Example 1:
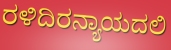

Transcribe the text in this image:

ರಳಿದಿರನ್ಯಾಯದಲಿ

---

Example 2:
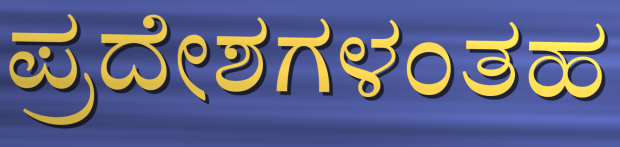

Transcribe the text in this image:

ಪ್ರದೇಶಗಳಂತಹ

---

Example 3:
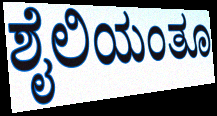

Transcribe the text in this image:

ಶೈಲಿಯಂತೂ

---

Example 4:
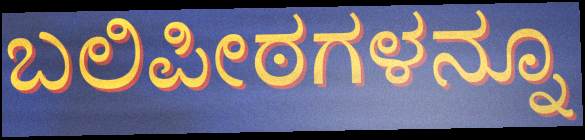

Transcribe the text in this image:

ಬಲಿಪೀಠಗಳನ್ನೂ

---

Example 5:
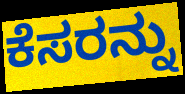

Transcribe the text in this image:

ಕೆಸರನ್ನು